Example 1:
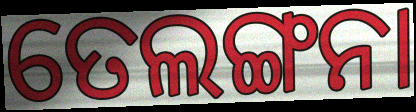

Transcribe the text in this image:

ତେଲଙ୍ଗନା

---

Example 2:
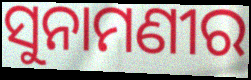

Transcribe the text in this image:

ସୁନାମଣୀର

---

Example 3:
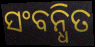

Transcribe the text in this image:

ସଂବନ୍ଧିତ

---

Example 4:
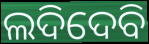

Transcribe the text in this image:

ଲଦିଦେବି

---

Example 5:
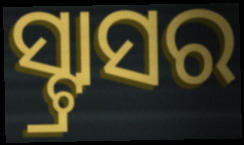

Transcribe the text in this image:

ସ୍ଟ୍ରାସର